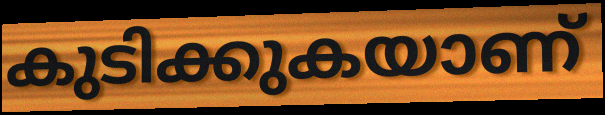
കുടിക്കുകയാണ്